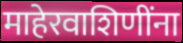
माहेरवाशिणींना